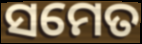
ସମେତ